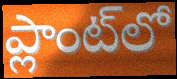
ప్లాంట్‌లో